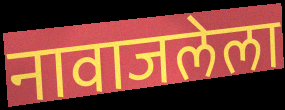
नावाजलेला